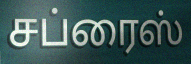
சப்ரைஸ்